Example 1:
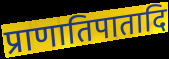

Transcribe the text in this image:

प्राणातिपातादि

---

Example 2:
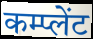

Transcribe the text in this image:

कम्प्लेंट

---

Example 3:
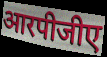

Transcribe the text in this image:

आरपीजीए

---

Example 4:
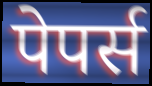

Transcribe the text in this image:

पेपर्स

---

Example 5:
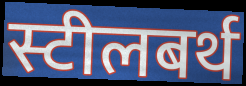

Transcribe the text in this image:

स्टीलबर्थ